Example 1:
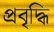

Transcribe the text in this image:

প্রবৃদ্ধি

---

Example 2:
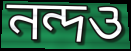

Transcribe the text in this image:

নন্দও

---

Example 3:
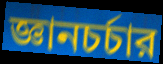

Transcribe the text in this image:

জ্ঞানচর্চার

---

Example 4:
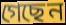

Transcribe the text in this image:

গেছেন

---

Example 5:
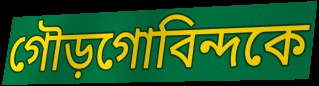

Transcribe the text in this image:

গৌড়গোবিন্দকে